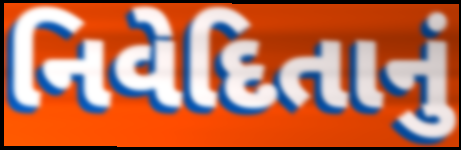
નિવેદિતાનું